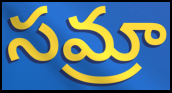
సమ్రా